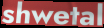
shwetal